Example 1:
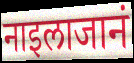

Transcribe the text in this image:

नाइलाजानं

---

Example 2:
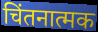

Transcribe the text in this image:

चिंतनात्मक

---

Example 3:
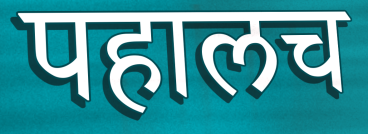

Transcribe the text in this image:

पहालच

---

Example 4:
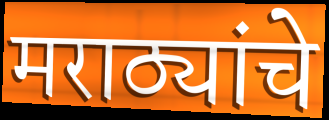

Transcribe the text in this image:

मराठ्यांचे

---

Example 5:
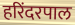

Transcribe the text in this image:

हरिंदरपाल